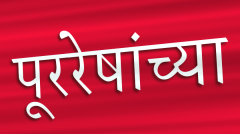
पूररेषांच्या